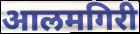
आलमगिरी